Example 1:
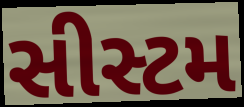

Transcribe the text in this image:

સીસ્ટમ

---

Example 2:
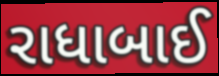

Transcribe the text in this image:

રાધાબાઈ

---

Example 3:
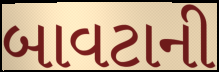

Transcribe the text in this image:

બાવટાની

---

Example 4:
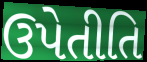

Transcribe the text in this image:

ઉપેતીતિ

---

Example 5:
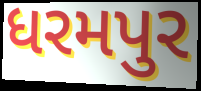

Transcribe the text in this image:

ધરમપુર